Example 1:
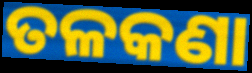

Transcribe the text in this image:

ତଳକଣା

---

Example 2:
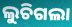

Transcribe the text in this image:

ଲୁଚିଗଲା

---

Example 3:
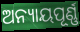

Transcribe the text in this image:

ଅନ୍ୟାୟପୂର୍ଣ୍ଣ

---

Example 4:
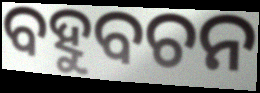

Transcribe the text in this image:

ବହୁବଚନ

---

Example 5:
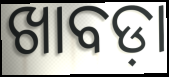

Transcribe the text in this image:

ଖାବଡ଼ା